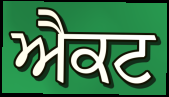
ਐਕਟ